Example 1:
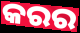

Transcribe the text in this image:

କରର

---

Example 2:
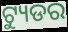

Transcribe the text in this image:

ଟ୍ୟୁଡର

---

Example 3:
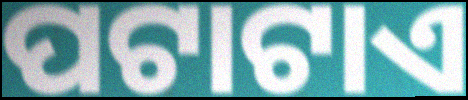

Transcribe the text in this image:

ପଟାଟାଏ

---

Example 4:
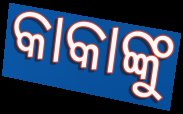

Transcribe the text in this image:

କାକାଙ୍କୁ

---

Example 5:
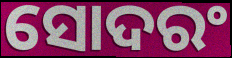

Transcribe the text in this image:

ସୋଦରଂ